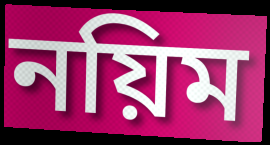
নয়িম